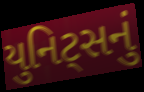
યુનિટ્સનું